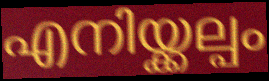
എനിയ്ക്കല്പം